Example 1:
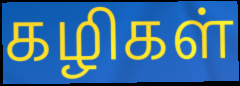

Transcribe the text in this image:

கழிகள்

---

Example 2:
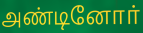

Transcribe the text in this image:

அண்டினோர்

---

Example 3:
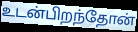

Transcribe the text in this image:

உடன்பிறந்தோன்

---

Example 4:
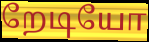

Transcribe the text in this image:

றேடியோ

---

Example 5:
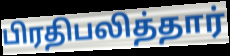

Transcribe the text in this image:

பிரதிபலித்தார்